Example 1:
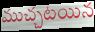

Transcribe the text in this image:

ముచ్చటయిన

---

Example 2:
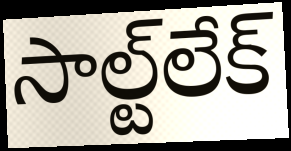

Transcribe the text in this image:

సాల్ట్‌లేక్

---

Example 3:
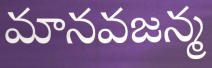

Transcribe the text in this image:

మానవజన్మ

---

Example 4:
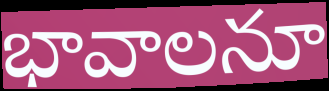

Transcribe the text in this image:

భావాలనూ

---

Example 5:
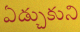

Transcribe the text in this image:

ఏడ్చుకుని